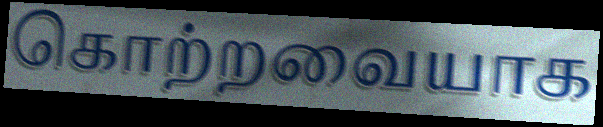
கொற்றவையாக